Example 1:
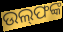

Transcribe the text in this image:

ଉଲ୍‌ଫଙ୍କ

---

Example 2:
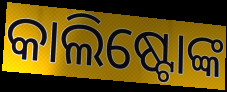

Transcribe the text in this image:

କାଲିଷ୍ଟୋଙ୍କ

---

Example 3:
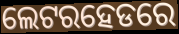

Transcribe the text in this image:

ଲେଟରହେଡରେ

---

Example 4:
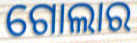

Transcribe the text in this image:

ଗୋଲାର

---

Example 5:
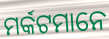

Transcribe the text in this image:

ମର୍କଟମାନେ